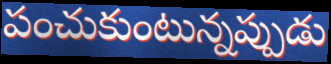
పంచుకుంటున్నప్పుడు